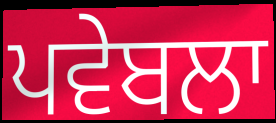
ਪਵੇਬਲਾ